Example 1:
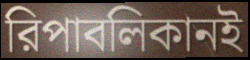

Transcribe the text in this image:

রিপাবলিকানই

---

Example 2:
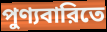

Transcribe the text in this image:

পুণ্যবারিতে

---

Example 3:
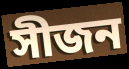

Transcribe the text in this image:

সীজন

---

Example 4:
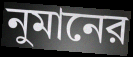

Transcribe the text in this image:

নুমানের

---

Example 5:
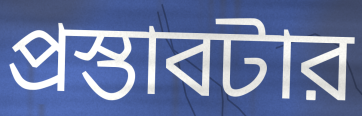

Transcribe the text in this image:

প্রস্তাবটার